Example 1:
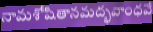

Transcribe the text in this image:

నామశోషితానమద్భవాంధవే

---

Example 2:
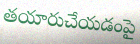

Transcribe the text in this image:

తయారుచేయడంపై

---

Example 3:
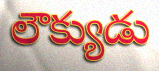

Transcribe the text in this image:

లౌక్యుడు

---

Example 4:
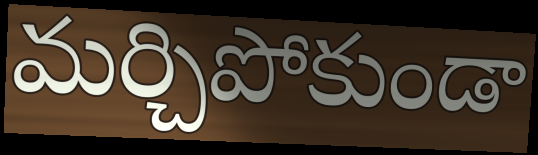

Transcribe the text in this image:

మర్చిపోకుండా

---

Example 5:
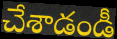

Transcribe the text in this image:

చేశాడండీ